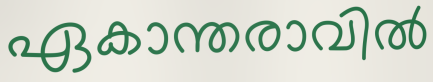
ഏകാന്തരാവിൽ